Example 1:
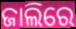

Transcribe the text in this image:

ଜାଲିରେ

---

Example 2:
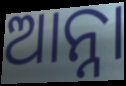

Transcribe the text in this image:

ଆନ୍ନା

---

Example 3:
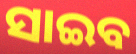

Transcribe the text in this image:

ସାଇବ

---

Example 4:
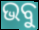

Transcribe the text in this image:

ଭବୁ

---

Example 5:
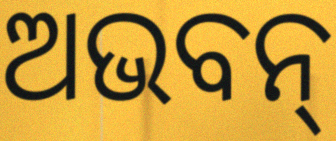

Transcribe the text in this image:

ଅଭବନ୍